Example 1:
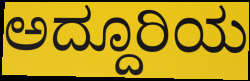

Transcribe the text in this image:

ಅದ್ದೂರಿಯ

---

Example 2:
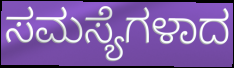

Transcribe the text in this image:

ಸಮಸ್ಯೆಗಳಾದ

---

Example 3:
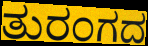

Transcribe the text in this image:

ತುರಂಗದ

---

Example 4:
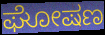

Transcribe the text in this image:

ಘೋಷಣ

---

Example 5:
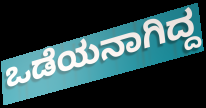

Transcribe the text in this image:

ಒಡೆಯನಾಗಿದ್ದ